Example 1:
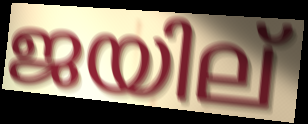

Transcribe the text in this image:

ജയില്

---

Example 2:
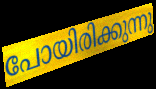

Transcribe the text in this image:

പോയിരിക്കുന്നു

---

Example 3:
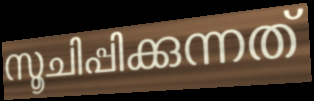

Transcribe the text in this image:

സൂചിപ്പിക്കുന്നത്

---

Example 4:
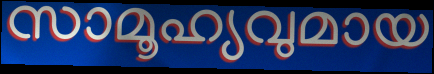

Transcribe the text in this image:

സാമൂഹ്യവുമായ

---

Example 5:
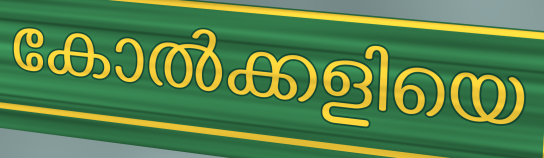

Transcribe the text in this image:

കോൽക്കളിയെ